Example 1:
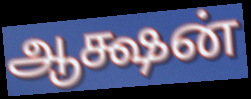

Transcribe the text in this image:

ஆக்ஷன்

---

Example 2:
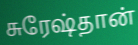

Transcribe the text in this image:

சுரேஷ்தான்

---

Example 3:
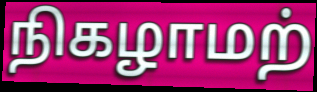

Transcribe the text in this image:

நிகழாமற்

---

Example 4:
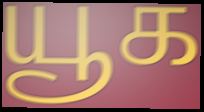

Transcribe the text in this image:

யூக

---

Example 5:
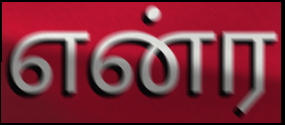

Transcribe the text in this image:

என்ர